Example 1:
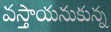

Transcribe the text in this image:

వస్తాయనుకున్న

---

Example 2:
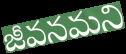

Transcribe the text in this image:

జీవనమని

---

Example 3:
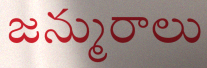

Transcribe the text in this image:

జన్మురాలు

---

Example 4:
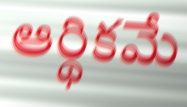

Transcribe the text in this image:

ఆర్థికమే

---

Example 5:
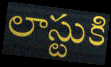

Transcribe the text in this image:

లాస్టుకి